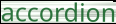
accordion